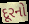
દૂરનો